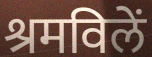
श्रमविलें